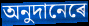
অনুদানেৰে